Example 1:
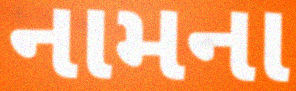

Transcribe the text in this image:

નામના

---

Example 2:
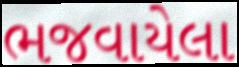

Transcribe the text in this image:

ભજવાયેલા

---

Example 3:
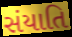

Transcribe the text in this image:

સંયાતિ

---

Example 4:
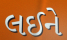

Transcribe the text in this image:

લઈને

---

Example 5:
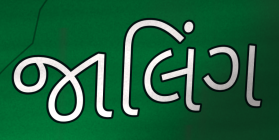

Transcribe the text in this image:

જાલિંગ